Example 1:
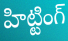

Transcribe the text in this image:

హిట్టింగ్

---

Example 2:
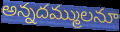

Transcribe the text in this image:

అన్నదమ్ములనూ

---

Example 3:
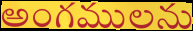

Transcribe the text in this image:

అంగములను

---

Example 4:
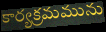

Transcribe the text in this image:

కార్యక్రమమును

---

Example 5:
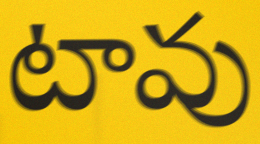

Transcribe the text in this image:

టావు